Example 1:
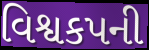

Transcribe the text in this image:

વિશ્વકપની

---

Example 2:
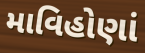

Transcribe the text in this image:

માવિહોણાં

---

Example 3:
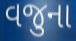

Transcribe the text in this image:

વજુના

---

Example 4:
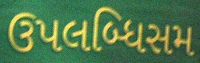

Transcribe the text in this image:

ઉપલબ્ધિસમ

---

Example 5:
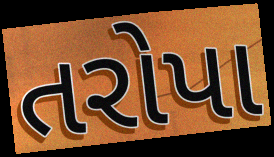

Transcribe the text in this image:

તરોપા